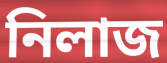
নিলাজ